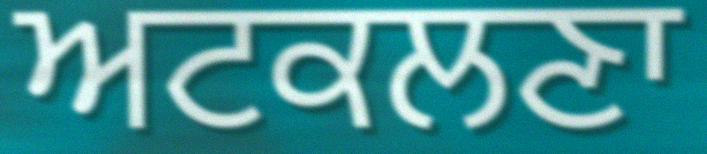
ਅਟਕਲਣਾ